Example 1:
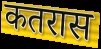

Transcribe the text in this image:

कतरास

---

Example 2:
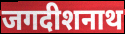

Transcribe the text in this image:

जगदीशनाथ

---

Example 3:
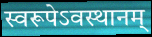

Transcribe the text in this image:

स्वरूपेऽवस्थानम्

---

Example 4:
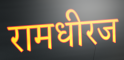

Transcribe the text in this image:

रामधीरज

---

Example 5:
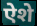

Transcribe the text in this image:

ऐशे